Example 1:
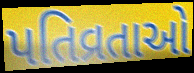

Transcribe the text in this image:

પતિવ્રતાઓ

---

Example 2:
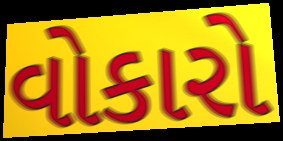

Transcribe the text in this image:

વોકારો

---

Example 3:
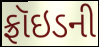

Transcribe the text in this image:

ફ્રૉઇડની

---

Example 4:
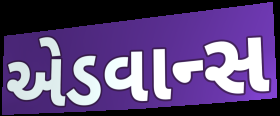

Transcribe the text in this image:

એડવાન્સ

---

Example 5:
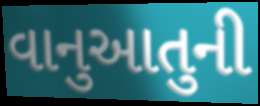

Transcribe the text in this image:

વાનુઆતુની